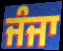
ਜੰਜਾ